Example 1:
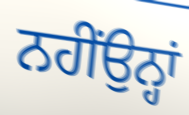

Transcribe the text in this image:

ਨਹੀਂਉਨ੍ਹਾਂ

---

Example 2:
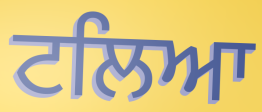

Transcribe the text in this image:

ਟਲਿਆ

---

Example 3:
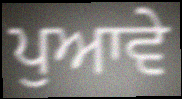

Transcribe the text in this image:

ਪੁਆਵੇ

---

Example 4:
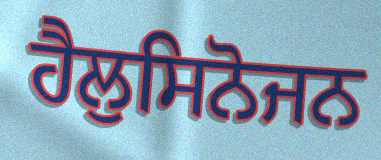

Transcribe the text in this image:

ਹੈਲੁਸਿਨੋਜਨ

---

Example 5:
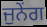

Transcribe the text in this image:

ਜੁਨੇਂਗ